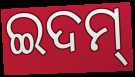
ଇଦମ୍